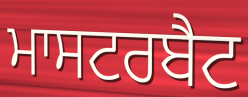
ਮਾਸਟਰਬੈਟ